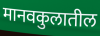
मानवकुलातील